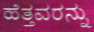
ಹೆತ್ತವರನ್ನು